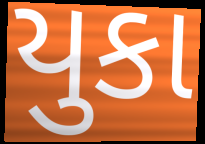
યુકા